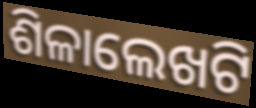
ଶିଳାଲେଖଟି